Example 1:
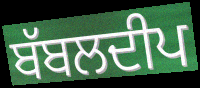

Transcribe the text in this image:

ਬੱਬਲਦੀਪ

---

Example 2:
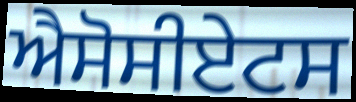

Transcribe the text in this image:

ਐਸੋਸੀਏਟਸ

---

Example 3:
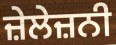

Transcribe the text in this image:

ਜ਼ੇਲੇਜ਼ਨੀ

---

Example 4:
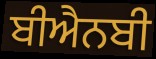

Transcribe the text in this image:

ਬੀਐਨਬੀ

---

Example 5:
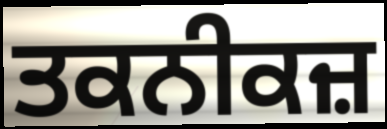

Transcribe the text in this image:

ਤਕਨੀਕਜ਼